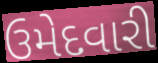
ઉમેદવારી